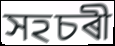
সহচৰী